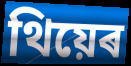
থিয়েৰ